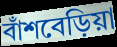
বাঁশবেড়িয়া